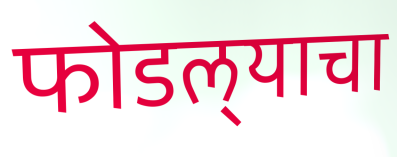
फोडल्याचा